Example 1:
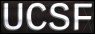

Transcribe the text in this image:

UCSF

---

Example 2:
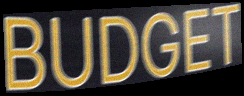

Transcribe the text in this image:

BUDGET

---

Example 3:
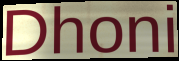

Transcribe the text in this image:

Dhoni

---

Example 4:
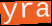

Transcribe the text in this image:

yra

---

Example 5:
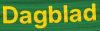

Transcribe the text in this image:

Dagblad